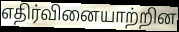
எதிர்வினையாற்றின